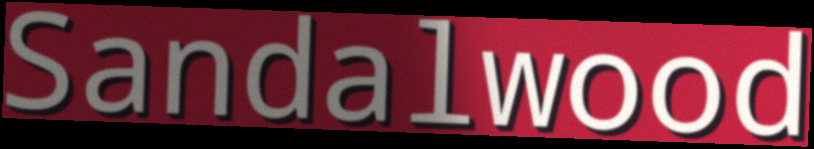
Sandalwood